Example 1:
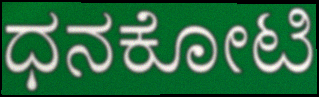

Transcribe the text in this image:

ಧನಕೋಟಿ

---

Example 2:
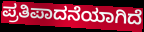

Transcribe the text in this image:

ಪ್ರತಿಪಾದನೆಯಾಗಿದೆ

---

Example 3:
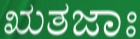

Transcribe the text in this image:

ಋತಜಾಃ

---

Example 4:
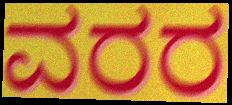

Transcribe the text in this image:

ವರರ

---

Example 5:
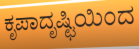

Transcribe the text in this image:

ಕೃಪಾದೃಷ್ಟಿಯಿಂದ